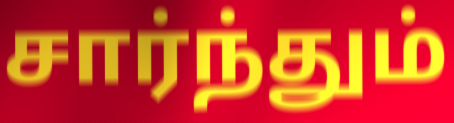
சார்ந்தும்